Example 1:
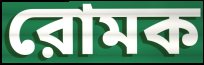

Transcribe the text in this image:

রোমক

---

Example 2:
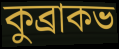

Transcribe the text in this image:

কুব্রাকভ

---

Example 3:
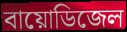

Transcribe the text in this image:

বায়োডিজেল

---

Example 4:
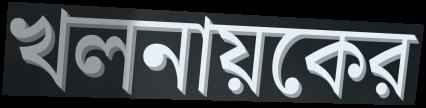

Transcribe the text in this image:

খলনায়কের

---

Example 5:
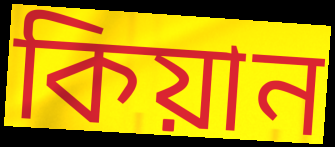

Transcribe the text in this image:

কিয়ান